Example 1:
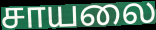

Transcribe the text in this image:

சாயலை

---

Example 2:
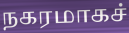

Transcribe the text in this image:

நகரமாகச்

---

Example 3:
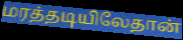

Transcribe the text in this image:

மரத்தடியிலேதான்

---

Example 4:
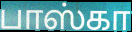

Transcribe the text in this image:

பாஸ்கா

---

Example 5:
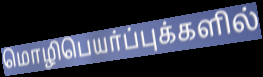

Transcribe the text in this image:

மொழிபெயர்ப்புக்களில்